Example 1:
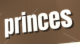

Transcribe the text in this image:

princes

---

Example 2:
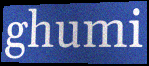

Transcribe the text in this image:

ghumi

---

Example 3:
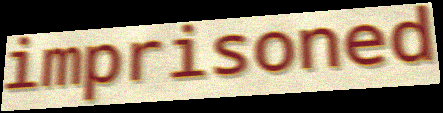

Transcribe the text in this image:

imprisoned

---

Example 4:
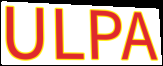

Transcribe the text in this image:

ULPA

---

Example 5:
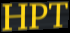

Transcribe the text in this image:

HPT